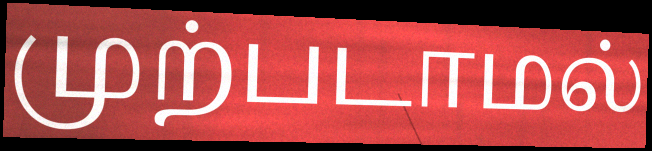
முற்படாமல்